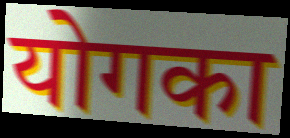
योगका